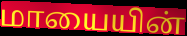
மாயையின்